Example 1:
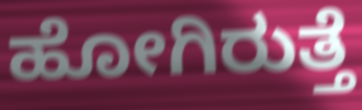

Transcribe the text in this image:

ಹೋಗಿರುತ್ತೆ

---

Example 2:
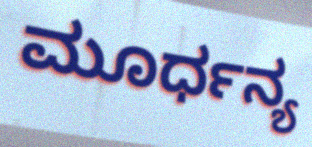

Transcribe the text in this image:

ಮೂರ್ಧನ್ಯ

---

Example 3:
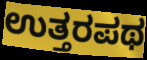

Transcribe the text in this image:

ಉತ್ತರಪಥ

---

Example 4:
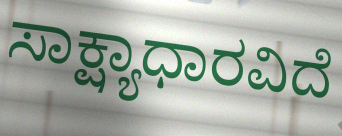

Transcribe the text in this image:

ಸಾಕ್ಷ್ಯಾಧಾರವಿದೆ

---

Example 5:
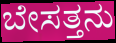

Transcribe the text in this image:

ಬೇಸತ್ತನು